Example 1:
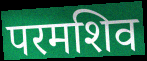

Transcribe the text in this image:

परमशिव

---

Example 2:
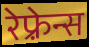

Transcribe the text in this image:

रेफ़्रेन्स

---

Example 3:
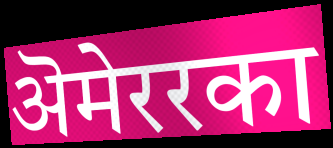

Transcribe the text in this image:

ऄमेररका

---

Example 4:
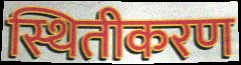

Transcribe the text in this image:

स्थितीकरण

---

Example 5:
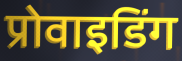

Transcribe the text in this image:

प्रोवाइडिंग